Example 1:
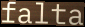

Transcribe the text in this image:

falta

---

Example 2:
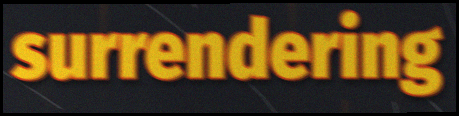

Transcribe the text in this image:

surrendering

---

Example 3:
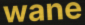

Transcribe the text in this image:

wane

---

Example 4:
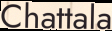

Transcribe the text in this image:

Chattala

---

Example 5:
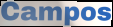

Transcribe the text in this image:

Campos